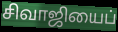
சிவாஜியைப்